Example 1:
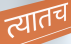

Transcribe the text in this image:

त्यातच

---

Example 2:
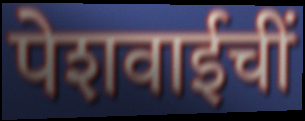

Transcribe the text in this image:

पेशवाईचीं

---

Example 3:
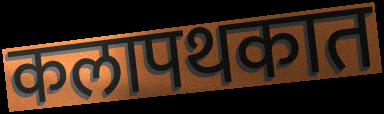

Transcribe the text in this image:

कलापथकात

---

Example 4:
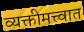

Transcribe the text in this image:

व्यक्तीमत्त्वात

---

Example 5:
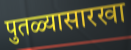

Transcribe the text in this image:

पुतळ्यासारखा